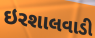
ઇરશાલવાડી